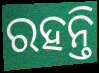
ରହନ୍ତି